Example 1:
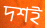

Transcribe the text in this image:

দশই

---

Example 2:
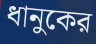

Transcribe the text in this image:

ধানুকের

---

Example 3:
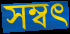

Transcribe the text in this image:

সম্বৎ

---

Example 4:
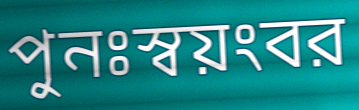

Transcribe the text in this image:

পুনঃস্বয়ংবর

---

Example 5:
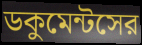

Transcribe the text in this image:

ডকুমেন্টসের